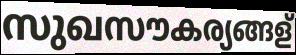
സുഖസൗകര്യങ്ങള്